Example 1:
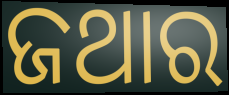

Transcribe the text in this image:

ଜଥାର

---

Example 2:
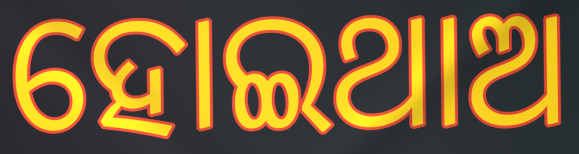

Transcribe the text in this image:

ହୋଇଥାଅ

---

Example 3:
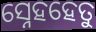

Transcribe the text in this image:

ସ୍ନେହହେତୁ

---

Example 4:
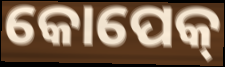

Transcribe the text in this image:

କୋପେକ୍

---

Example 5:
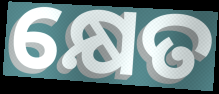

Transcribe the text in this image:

କ୍ଷେତ